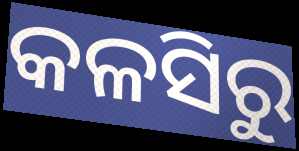
କଳସିରୁ